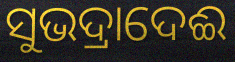
ସୁଭଦ୍ରାଦେଈ